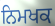
ਨਿਮਖਕ